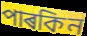
পাৰকিন